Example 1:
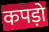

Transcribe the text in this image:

कपड़ो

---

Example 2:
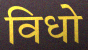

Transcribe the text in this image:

विधो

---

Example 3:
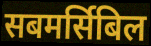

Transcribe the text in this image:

सबमर्सिबिल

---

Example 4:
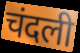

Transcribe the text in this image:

चंदली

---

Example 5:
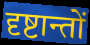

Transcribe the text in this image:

दृष्टान्तों